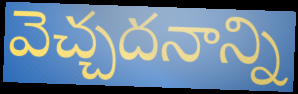
వెచ్చదనాన్ని